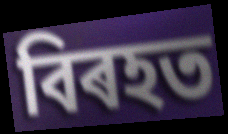
বিৰহত